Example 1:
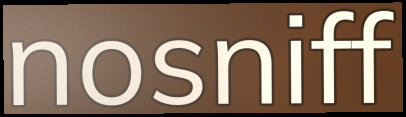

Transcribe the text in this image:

nosniff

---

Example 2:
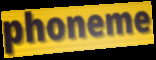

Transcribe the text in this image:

phoneme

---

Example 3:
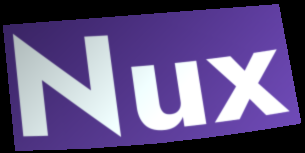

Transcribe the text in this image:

Nux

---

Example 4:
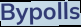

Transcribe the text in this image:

Bypolls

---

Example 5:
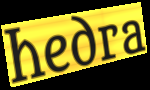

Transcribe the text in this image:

hedra